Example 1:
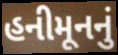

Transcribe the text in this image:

હનીમૂનનું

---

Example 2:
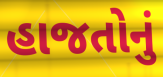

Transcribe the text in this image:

હાજતોનું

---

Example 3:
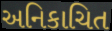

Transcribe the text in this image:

અનિકાચિત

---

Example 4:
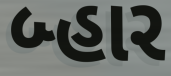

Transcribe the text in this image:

બ્હાર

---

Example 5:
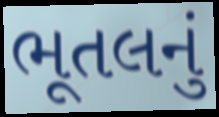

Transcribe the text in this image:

ભૂતલનું